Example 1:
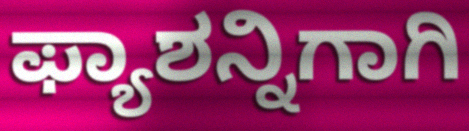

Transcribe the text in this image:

ಫ್ಯಾಶನ್ನಿಗಾಗಿ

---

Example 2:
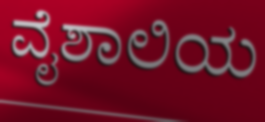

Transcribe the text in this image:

ವೈಶಾಲಿಯ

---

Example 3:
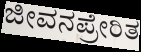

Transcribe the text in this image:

ಜೀವನಪ್ರೇರಿತ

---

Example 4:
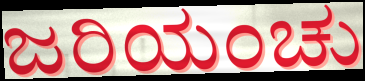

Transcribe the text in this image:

ಜರಿಯಂಚು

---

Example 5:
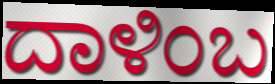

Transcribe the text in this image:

ದಾಳಿಂಬ